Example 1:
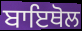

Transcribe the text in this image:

ਬਾਇਥੋਲ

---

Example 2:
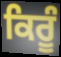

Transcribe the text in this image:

ਕਿਰੂੰ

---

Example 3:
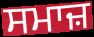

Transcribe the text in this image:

ਸਮਾਜ਼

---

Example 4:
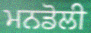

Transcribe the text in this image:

ਮਨਡੋਲੀ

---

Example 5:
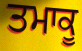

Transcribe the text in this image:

ਤਮਾਕੂ